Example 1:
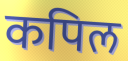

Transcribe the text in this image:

कपिल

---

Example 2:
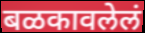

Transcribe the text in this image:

बळकावलेलं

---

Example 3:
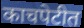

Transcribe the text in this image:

काचपेटीत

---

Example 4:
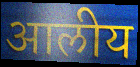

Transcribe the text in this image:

आलीय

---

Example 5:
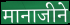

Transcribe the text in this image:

मानाजीने